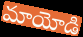
మాయోడి